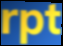
rpt